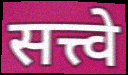
सत्त्वे